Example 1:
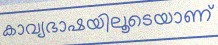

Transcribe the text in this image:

കാവ്യഭാഷയിലൂടെയാണ്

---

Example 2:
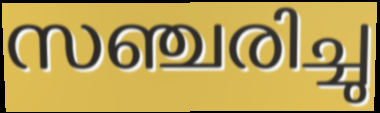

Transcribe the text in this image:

സഞ്ചരിച്ചു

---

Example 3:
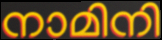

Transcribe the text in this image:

നാമിനി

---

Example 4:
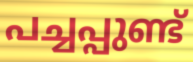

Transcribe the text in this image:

പച്ചപ്പുണ്ട്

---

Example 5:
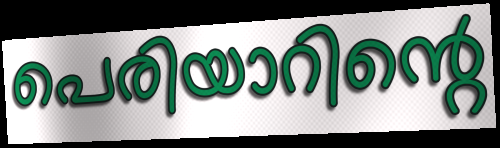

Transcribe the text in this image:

പെരിയാറിന്റെ